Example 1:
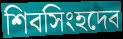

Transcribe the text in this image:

শিবসিংহদেব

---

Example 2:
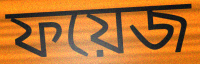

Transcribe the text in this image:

ফয়েজ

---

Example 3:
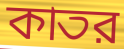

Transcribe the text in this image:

কাতর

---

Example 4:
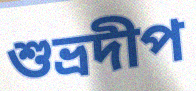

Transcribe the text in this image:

শুভ্রদীপ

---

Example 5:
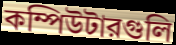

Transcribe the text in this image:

কম্পিউটারগুলি